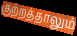
குற்றத்தாலும்